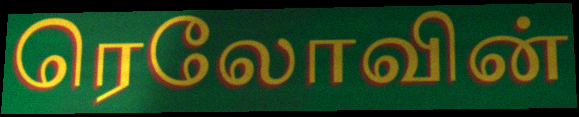
ரெலோவின்